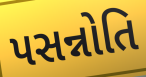
પસન્નોતિ